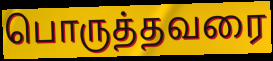
பொருத்தவரை